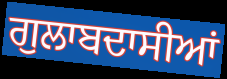
ਗੁਲਾਬਦਾਸੀਆਂ